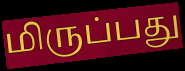
மிருப்பது